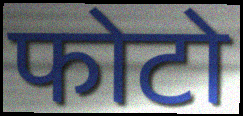
फोटो